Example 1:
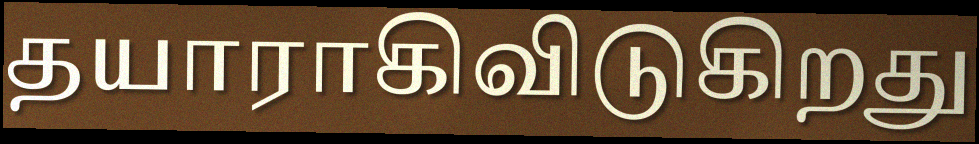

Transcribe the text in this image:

தயாராகிவிடுகிறது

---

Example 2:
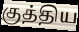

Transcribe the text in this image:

குத்திய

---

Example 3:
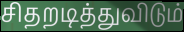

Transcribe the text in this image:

சிதறடித்துவிடும்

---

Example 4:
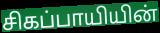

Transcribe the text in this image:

சிகப்பாயியின்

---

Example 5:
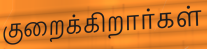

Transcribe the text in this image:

குறைக்கிறார்கள்